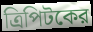
ত্রিপিটকের